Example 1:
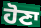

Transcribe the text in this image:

ਹੋਣਾ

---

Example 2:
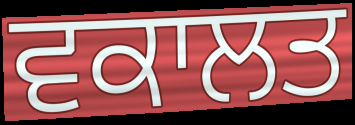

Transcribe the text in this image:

ਵਕਾਲਤ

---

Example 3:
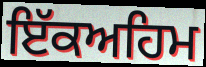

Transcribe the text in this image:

ਇੱਕਅਹਿਮ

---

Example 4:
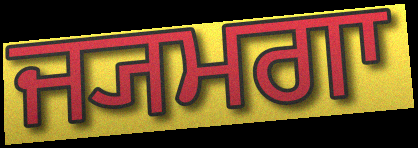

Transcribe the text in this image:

ਜ੍ਯਮਗਾ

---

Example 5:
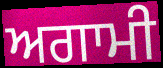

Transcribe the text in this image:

ਅਗਾਮੀ